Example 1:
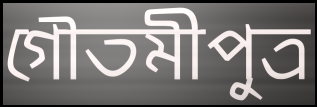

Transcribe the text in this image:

গৌতমীপুত্র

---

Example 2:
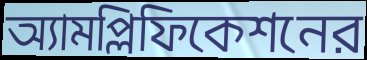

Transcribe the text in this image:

অ্যামপ্লিফিকেশনের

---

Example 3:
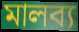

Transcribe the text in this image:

মালব্য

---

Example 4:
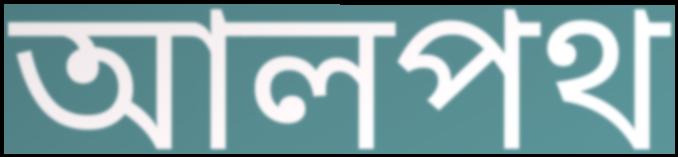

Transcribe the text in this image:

আলপথ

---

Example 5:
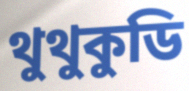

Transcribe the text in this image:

থুথুকুডি